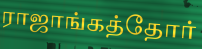
ராஜாங்கத்தோர்